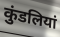
कुंडलियां